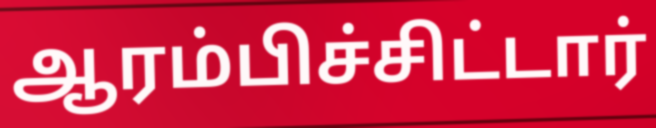
ஆரம்பிச்சிட்டார்